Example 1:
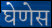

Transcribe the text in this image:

घेणेस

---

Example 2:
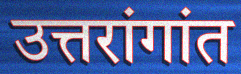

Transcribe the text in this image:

उत्तरांगांत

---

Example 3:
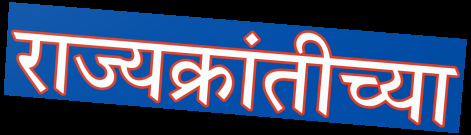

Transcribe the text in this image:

राज्यक्रांतीच्या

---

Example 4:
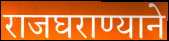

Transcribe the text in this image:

राजघराण्याने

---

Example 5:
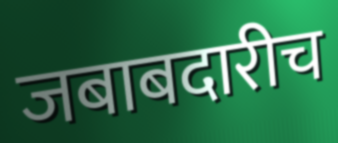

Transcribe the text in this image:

जबाबदारीच